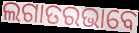
ଲଗାତରଭାବେ